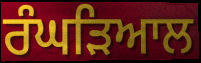
ਰੰਘੜਿਆਲ